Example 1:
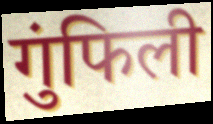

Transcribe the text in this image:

गुंफिली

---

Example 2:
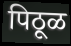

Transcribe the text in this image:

पिठूळ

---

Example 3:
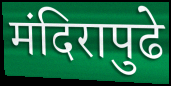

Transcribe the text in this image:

मंदिरापुढे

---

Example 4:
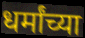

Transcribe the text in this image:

धर्मांच्या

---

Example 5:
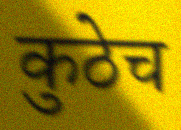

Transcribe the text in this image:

कुठेच